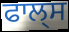
ਫਾਲ੍ਸ